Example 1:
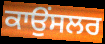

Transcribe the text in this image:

ਕਾਉਂਸਲਰ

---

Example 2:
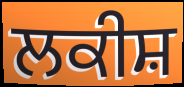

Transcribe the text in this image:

ਲਕੀਸ਼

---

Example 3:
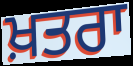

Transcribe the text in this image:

ਖ਼ਤਰਾ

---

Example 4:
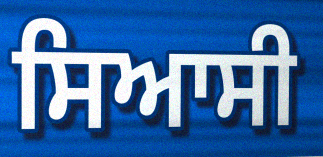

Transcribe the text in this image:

ਸਿਆਸੀ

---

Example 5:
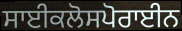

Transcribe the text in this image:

ਸਾਈਕਲੋਸਪੋਰਾਈਨ